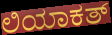
ಲಿಯಾಕತ್